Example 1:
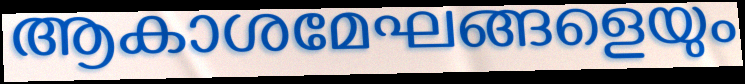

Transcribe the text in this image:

ആകാശമേഘങ്ങളെയും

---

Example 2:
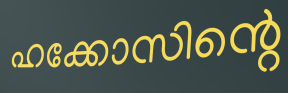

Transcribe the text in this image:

ഹക്കോസിന്റെ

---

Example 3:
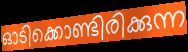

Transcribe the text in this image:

ഓടിക്കൊണ്ടിരിക്കുന്ന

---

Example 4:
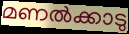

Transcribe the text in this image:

മണൽക്കാടു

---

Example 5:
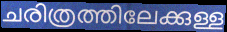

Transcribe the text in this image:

ചരിത്രത്തിലേക്കുള്ള